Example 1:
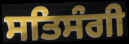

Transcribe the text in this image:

ਸਤਿਸੰਗੀ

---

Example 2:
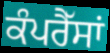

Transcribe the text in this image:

ਕੰਪਰੈੱਸਾਂ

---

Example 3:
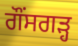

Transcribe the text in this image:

ਗੌਂਸਗੜ੍ਹ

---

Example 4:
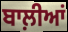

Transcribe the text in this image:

ਬਾਲ਼ੀਆਂ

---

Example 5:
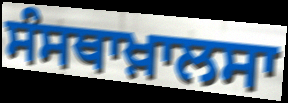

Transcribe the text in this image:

ਸੰਸਥਾਖ਼ਾਲਸਾ